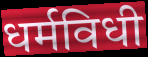
धर्मविधी